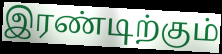
இரண்டிற்கும்